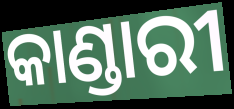
କାଣ୍ଡାରୀ